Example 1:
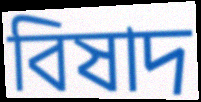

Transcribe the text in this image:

বিষাদ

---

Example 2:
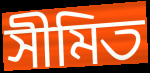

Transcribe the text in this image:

সীমিত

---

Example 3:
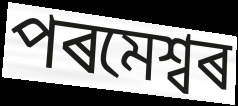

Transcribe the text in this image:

পৰমেশ্বৰ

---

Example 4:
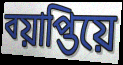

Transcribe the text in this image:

ব্য়াপ্তিয়ে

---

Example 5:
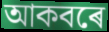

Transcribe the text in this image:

আকবৰে